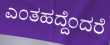
ಎಂತಹದ್ದೆಂದರೆ